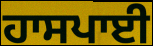
ਹਾਸਪਾਈ